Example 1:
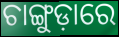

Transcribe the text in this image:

ଚାଙ୍ଗୁଡ଼ାରେ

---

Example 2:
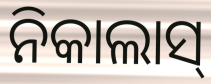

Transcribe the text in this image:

ନିକାଲାସ୍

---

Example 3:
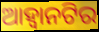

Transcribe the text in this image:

ଆହ୍ଵାନଟିର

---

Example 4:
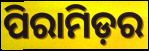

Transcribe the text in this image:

ପିରାମିଡ଼ର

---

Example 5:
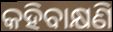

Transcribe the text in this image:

କହିବାକ୍ଷଣି